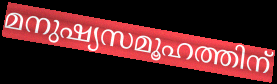
മനുഷ്യസമൂഹത്തിന്